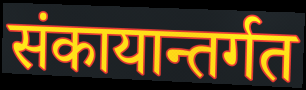
संकायान्तर्गत